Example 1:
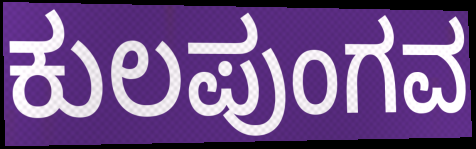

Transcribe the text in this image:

ಕುಲಪುಂಗವ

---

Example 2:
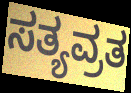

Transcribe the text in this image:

ಸತ್ಯವ್ರತ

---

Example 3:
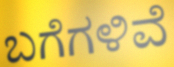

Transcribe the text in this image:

ಬಗೆಗಳಿವೆ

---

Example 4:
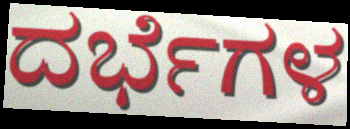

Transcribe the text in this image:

ದರ್ಭೆಗಳ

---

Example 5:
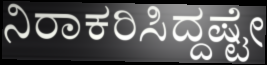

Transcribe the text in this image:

ನಿರಾಕರಿಸಿದ್ದಷ್ಟೇ